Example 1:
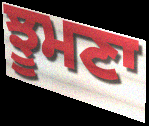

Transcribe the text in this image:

ਝੂਮਣਾ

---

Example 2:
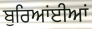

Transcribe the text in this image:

ਬੁਰਿਆਂਈਆਂ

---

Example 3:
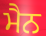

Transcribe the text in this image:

ਮੈਨ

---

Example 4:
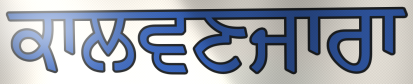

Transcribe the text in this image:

ਕਾਲਵਣਜਾਰਾ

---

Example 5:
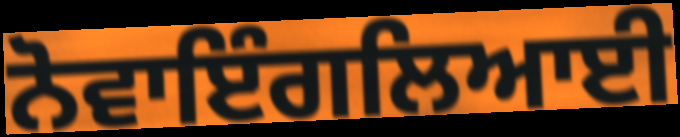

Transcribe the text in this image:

ਨੋਵਾਇੰਗਲਿਆਈ